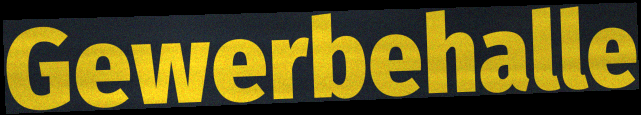
Gewerbehalle